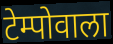
टेम्पोवाला